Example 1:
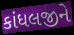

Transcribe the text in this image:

કાંધલજીને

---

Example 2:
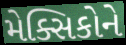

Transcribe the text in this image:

મેક્સિકોને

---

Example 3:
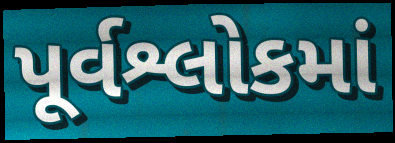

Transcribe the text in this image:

પૂર્વશ્લોકમાં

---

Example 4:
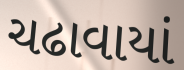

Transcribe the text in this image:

ચઢાવાયાં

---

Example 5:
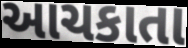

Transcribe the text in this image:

આચકાતા